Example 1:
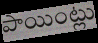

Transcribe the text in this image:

పాయింట్లు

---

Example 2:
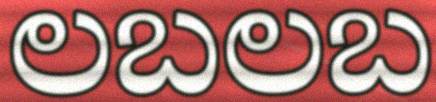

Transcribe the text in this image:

లబలబ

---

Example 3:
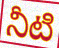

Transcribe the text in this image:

నీటి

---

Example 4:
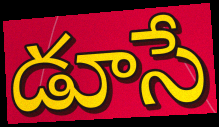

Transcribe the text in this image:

డూసే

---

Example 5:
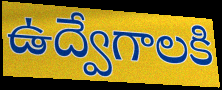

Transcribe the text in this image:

ఉద్వేగాలకి